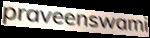
praveenswami